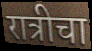
रात्रीचा